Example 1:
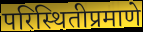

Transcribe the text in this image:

परिस्थितीप्रमाणे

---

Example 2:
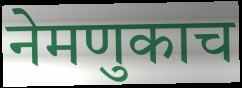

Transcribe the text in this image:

नेमणुकाच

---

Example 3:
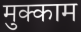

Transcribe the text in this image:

मुक्‍काम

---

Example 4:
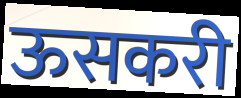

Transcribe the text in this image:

ऊसकरी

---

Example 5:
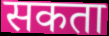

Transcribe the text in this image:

सकता